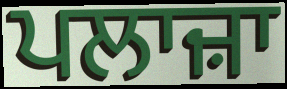
ਪਲਾਜ਼ਾ